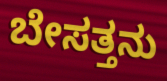
ಬೇಸತ್ತನು